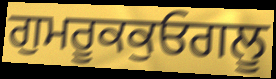
ਗੁਮਰੂਕਕੁਓਗਲੂ